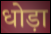
धोड़ा